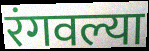
रंगवल्या